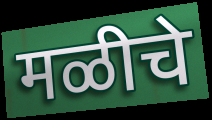
मळीचे